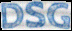
DSG